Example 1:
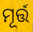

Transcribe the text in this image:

ମୂର୍ତ୍ତ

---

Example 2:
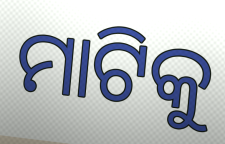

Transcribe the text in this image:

ମାଟିକୁ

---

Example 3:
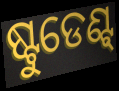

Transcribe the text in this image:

ଷ୍ଟୁଡେଣ୍ଟ୍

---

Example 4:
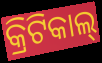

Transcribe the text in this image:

କ୍ରିଟିକାଲ୍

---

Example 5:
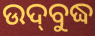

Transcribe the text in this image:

ଉଦ୍‌ବୁଦ୍ଧ